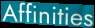
Affinities